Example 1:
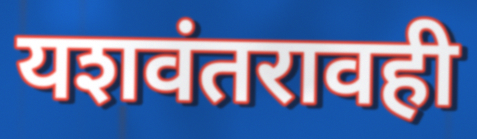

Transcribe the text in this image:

यशवंतरावही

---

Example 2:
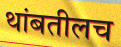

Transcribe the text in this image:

थांबतीलच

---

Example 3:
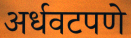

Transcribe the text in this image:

अर्धवटपणे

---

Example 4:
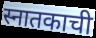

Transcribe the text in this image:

स्नातकाची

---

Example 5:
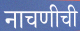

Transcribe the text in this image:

नाचणीची